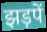
झड़पें